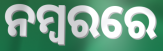
ନମ୍ବରରେ